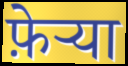
फ़ेर्‍या